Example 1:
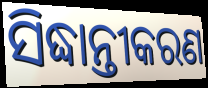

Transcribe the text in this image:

ସିଦ୍ଧାନ୍ତୀକରଣ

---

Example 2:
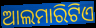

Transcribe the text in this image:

ଆଲମାରିଟିଏ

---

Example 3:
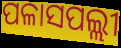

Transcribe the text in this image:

ପଳାସପଲ୍ଲୀ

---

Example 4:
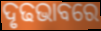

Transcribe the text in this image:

ଦୃଢଭାବରେ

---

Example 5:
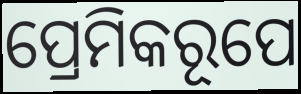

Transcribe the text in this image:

ପ୍ରେମିକରୂପେ